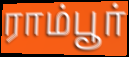
ராம்பூர்